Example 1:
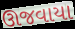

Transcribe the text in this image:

ઊજવાયા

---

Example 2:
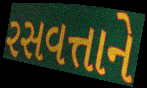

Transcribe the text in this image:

રસવત્તાને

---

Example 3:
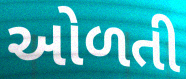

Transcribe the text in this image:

ઓળતી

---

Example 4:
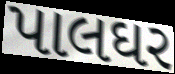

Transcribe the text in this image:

પાલઘર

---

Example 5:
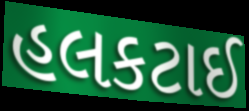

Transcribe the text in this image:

હલકટાઈ